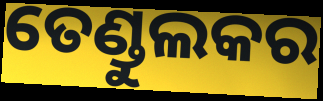
ତେଣ୍ଡୁଲକର